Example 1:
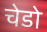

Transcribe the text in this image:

चेडो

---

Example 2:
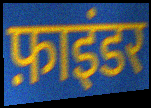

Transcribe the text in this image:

फ़ाइंडर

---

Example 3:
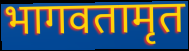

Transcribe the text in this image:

भागवतामृत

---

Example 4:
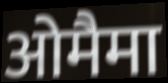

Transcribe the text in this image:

ओमैमा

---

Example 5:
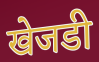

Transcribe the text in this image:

खेजडी